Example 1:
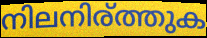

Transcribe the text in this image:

നിലനിര്ത്തുക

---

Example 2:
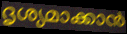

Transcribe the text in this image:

ദൃശ്യമാക്കാൻ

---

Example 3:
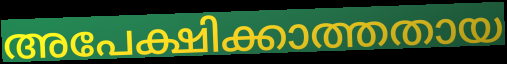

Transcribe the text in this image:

അപേക്ഷിക്കാത്തതായ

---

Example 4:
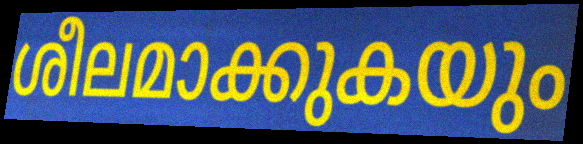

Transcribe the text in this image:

ശീലമാക്കുകയും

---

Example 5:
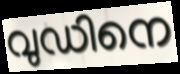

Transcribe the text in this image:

വുഡിനെ